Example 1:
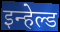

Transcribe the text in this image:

इन्हेल्ड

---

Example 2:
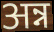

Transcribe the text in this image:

अन्न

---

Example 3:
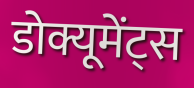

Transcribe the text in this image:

डोक्यूमेंट्स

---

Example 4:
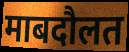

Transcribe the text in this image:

माबदौलत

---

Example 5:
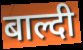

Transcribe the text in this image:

बाल्दी